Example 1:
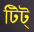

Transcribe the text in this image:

টিট্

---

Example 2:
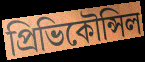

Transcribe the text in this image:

প্রিভিকৌন্সিল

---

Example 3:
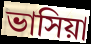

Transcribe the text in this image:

ভাসিয়া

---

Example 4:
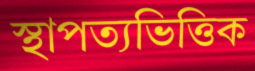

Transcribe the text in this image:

স্থাপত্যভিত্তিক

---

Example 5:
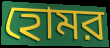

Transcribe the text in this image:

হোমর